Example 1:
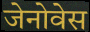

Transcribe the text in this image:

जेनोवेस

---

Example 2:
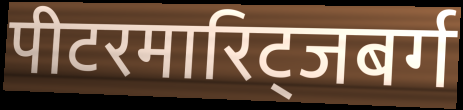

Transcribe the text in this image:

पीटरमारिट्जबर्ग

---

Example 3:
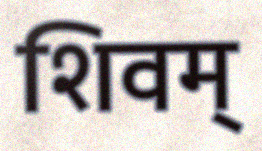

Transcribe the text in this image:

शिवम्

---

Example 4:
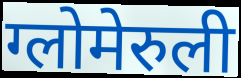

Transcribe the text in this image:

ग्लोमेरुली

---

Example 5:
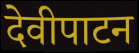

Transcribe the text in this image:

देवीपाटन